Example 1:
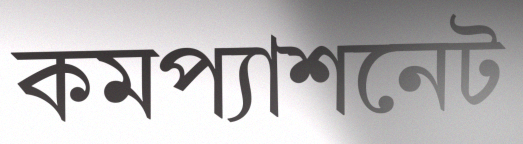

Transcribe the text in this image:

কমপ্যাশনেট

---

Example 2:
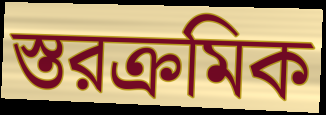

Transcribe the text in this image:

স্তরক্রমিক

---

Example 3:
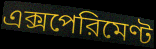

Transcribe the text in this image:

এক্সপেরিমেণ্ট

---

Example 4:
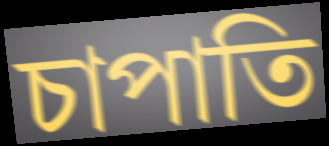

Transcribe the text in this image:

চাপাতি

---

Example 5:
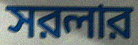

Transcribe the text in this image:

সরলার